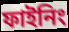
ফাইনিং